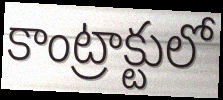
కాంట్రాక్టులో